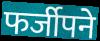
फर्जीपने